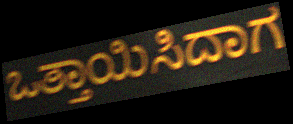
ಒತ್ತಾಯಿಸಿದಾಗ